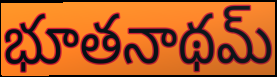
భూతనాథమ్